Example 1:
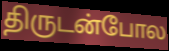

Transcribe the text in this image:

திருடன்போல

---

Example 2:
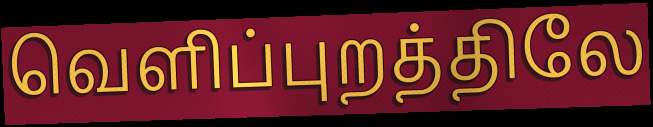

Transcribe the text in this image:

வெளிப்புறத்திலே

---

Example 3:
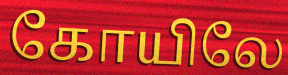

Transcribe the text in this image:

கோயிலே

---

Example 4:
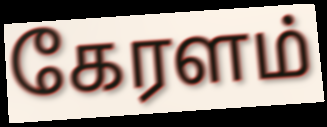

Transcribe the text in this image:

கேரளம்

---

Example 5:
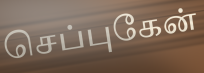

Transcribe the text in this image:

செப்புகேன்